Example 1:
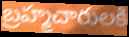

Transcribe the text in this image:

బ్రహ్మచారులకి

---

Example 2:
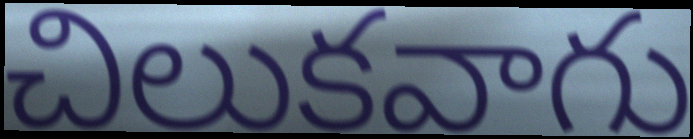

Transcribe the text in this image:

చిలుకవాగు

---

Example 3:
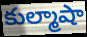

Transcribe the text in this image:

కుల్మాషా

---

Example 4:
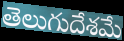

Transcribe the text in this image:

తెలుగుదేశమే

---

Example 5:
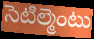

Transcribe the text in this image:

సెటిల్మెంటు